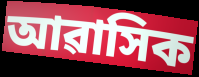
আৱাসিক